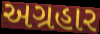
અગ્રહાર